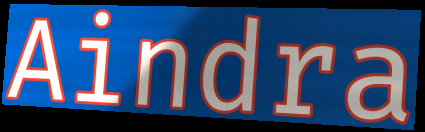
Aindra